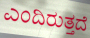
ಎಂದಿರುತ್ತದೆ